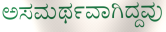
ಅಸಮರ್ಥವಾಗಿದ್ದವು